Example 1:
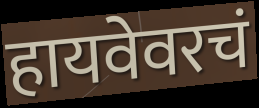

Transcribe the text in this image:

हायवेवरचं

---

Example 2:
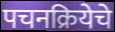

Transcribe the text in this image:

पचनक्रियेचे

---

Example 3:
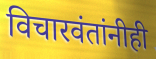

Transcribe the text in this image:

विचारवंतांनीही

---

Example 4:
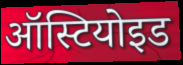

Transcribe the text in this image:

ऑस्टियोइड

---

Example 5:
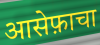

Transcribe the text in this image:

आसेफ़ाचा